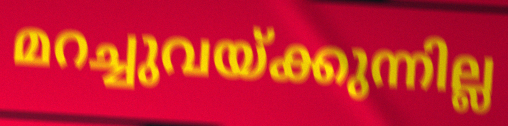
മറച്ചുവയ്ക്കുന്നില്ല